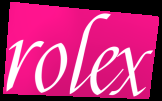
rolex